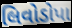
લિવોડોપા